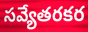
సవ్యేతరకర